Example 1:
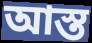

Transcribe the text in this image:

আস্ত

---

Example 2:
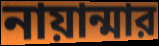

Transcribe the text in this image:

নায়ান্মার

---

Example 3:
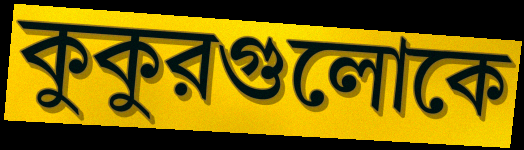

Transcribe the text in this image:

কুকুরগুলোকে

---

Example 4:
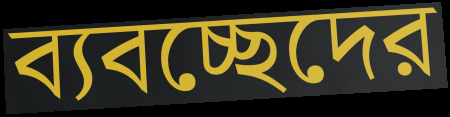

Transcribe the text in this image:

ব্যবচ্ছেদের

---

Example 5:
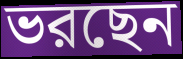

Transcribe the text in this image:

ভরছেন